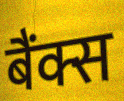
बैंक्स